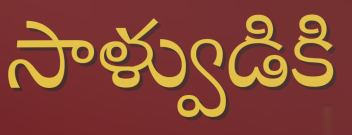
సాళ్వుడికి